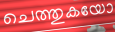
ചെത്തുകയോ